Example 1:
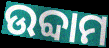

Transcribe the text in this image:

ଉବ୍ଦାମ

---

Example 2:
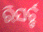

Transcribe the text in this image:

ରିସର୍ଚ୍ଚ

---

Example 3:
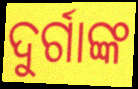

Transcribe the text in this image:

ଦୁର୍ଗାଙ୍କ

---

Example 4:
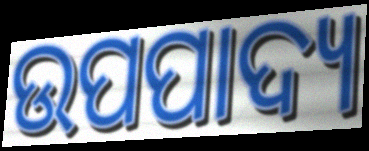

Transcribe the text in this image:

ଉପପାଦ୍ୟ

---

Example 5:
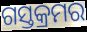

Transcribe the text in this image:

ଗସ୍ତକ୍ରମର